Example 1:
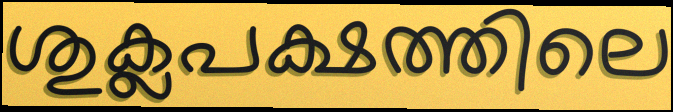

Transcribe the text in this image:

ശുക്ലപക്ഷത്തിലെ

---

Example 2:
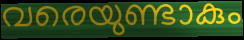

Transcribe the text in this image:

വരെയുണ്ടാകും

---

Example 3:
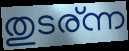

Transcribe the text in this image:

തുടര്ന്ന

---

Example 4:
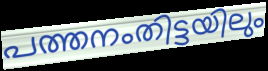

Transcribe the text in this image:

പത്തനംതിട്ടയിലും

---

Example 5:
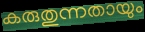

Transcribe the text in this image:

കരുതുന്നതായും